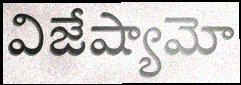
విజేష్యామో